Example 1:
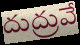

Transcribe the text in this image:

దుద్రువే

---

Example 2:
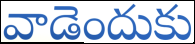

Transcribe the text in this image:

వాడెందుకు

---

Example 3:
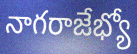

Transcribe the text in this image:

నాగరాజేభ్యో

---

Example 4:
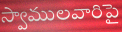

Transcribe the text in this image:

స్వాములవారిపై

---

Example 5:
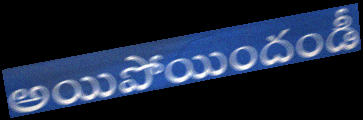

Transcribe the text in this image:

అయిపోయిందండీ